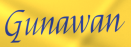
Gunawan